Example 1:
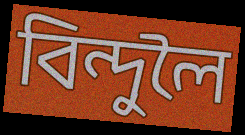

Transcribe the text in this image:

বিন্দুলৈ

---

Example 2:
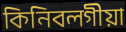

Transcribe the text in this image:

কিনিবলগীয়া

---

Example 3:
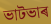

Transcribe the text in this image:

ভাটভাৰ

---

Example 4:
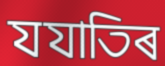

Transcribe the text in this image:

যযাতিৰ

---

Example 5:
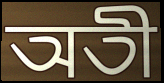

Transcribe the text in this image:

অতী